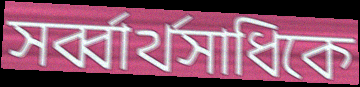
সর্ব্বার্থসাধিকে